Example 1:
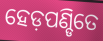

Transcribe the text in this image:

ହେଡ଼ପଣ୍ଡିତେ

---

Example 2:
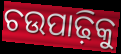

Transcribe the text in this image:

ଚଉପାଢ଼ିକୁ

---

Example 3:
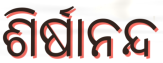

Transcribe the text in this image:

ଶିର୍ଷାନନ୍ଦ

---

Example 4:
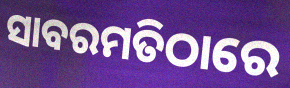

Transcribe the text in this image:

ସାବରମତିଠାରେ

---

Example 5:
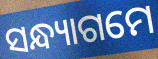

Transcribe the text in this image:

ସନ୍ଧ୍ୟାଗମେ